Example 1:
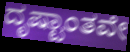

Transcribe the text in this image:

ದೃಷ್ಟಾಂತವೇ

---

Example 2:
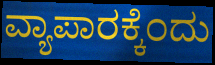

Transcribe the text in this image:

ವ್ಯಾಪಾರಕ್ಕೆಂದು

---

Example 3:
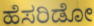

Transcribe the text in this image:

ಹೆಸರಿಡೋ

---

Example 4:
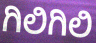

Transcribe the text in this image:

ಗಿಲಿಗಿಲಿ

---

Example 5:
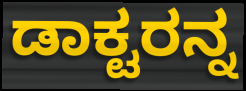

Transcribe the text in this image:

ಡಾಕ್ಟರನ್ನ